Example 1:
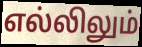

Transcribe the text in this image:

எல்லிலும்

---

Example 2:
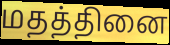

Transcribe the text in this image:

மதத்தினை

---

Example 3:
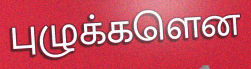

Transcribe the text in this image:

புழுக்களென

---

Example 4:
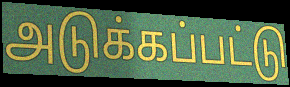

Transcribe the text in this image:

அடுக்கப்பட்டு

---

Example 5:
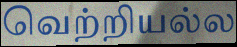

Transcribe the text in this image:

வெற்றியல்ல